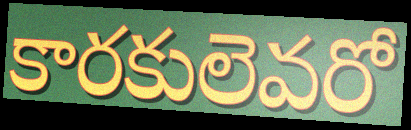
కారకులెవరో